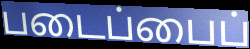
படைப்பைப்